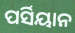
ପର୍ସିୟାନ